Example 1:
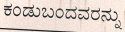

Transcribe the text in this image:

ಕಂಡುಬಂದವರನ್ನು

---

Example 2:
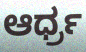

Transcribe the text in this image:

ಆರ್ಧ್ರ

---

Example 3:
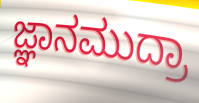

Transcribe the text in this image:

ಜ್ಞಾನಮುದ್ರಾ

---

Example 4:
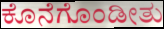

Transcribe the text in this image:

ಕೊನೆಗೊಂಡೀತು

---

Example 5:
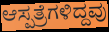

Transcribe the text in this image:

ಆಸ್ಪತ್ರೆಗಳಿದ್ದವು